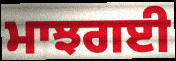
ਮਾਝਗਈ